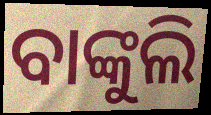
ବାଙ୍କୁଲି